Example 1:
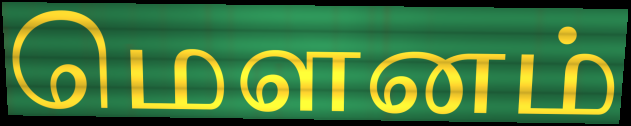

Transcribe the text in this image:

மெளனம்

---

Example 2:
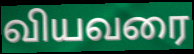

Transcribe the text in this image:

வியவரை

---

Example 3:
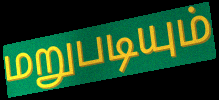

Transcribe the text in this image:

மறுபடியும்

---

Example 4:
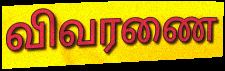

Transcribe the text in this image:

விவரணை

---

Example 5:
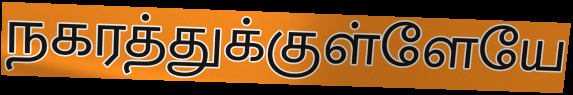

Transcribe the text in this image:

நகரத்துக்குள்ளேயே